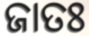
ଜାତଃ